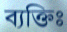
ব্যক্তিঃ